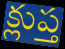
క్లుప్త